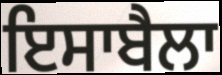
ਇਸਾਬੈਲਾ